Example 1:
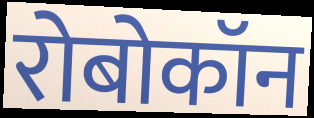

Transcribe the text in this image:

रोबोकॉन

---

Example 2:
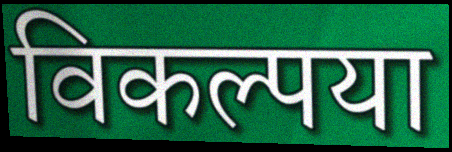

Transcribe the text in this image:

विकल्पया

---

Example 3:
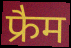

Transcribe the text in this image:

फ्रैम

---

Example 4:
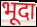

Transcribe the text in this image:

भूदा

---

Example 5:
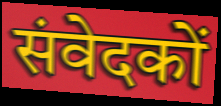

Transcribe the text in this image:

संवेदकों